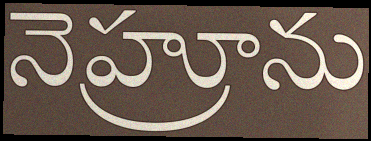
నెహ్రూను